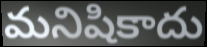
మనిషికాదు